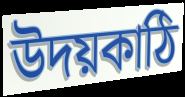
উদয়কাঠি